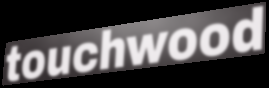
touchwood